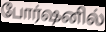
போர்ஷனில்